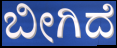
ಬೀಗಿದೆ